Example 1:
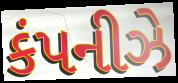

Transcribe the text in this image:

કંપનીઝે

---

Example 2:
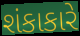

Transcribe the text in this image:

શંકાકારે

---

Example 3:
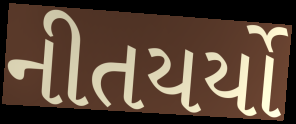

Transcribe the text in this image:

નીતયર્યો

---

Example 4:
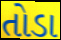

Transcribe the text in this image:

તોડા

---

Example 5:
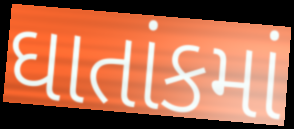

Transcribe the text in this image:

ઘાતાંકમાં